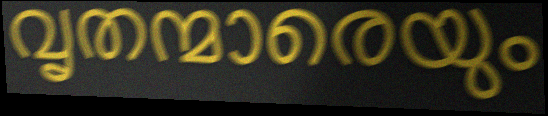
വൃതന്മാരെയും